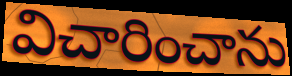
విచారించాను